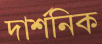
দাৰ্শনিক